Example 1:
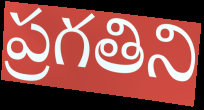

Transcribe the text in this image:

ప్రగతిని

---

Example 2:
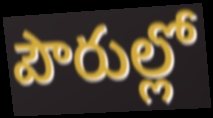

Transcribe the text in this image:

పౌరుల్లో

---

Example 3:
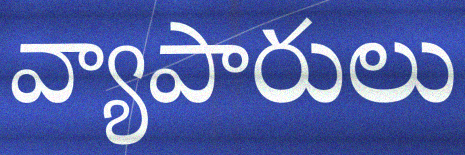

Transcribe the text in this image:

వ్యాపారులు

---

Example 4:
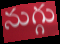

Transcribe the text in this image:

నుగ్గు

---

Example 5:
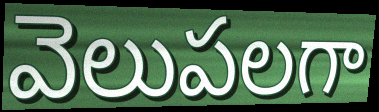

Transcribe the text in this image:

వెలుపలగా